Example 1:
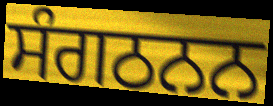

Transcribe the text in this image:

ਸੰਗਠਨਨ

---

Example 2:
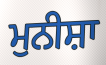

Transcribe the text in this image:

ਮੁਨੀਸ਼ਾ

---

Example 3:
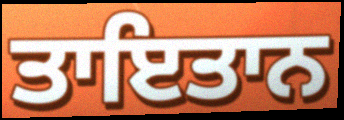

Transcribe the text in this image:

ਤਾਇਤਾਨ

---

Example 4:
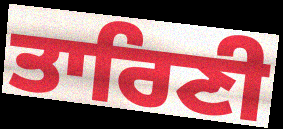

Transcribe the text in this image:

ਤਾਰਿਣੀ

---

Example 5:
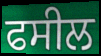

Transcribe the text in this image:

ਫਸੀਲ